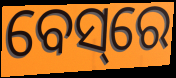
ବେସ୍‌ରେ